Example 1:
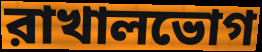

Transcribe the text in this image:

রাখালভোগ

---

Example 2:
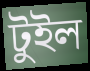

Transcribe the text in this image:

টুইল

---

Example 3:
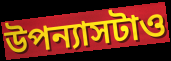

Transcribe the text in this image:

উপন্যাসটাও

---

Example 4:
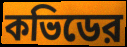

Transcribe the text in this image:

কভিডের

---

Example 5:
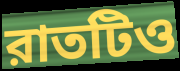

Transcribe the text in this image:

রাতটিও